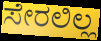
ಸೇರಲಿಲ್ಲ